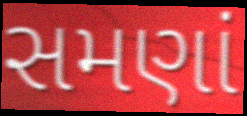
સમણાં